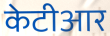
केटीआर